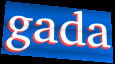
gada